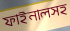
ফাইনালসহ